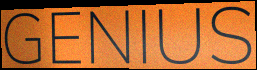
GENIUS